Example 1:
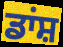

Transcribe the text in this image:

ਡਾਂਸ਼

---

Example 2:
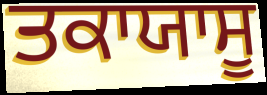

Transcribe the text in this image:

ਤਕਾਯਾਸੂ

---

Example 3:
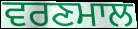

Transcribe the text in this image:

ਵਰਣਮਾਲ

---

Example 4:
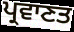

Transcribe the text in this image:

ਪ੍ਰਵਾਣਤ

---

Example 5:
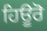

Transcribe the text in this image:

ਹਿਊਰੋ